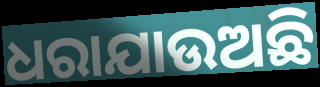
ଧରାଯାଉଅଛି